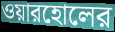
ওয়ারহোলের